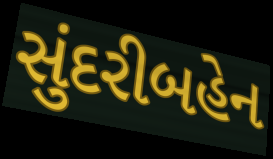
સુંદરીબહેન